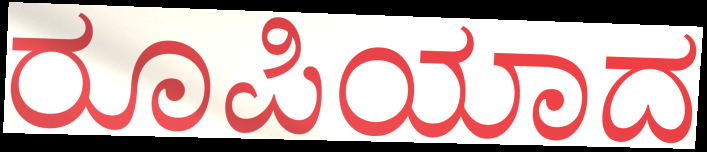
ರೂಪಿಯಾದ